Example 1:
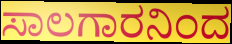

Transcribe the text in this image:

ಸಾಲಗಾರನಿಂದ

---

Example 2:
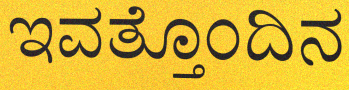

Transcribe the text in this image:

ಇವತ್ತೊಂದಿನ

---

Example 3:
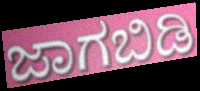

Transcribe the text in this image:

ಜಾಗಬಿಡಿ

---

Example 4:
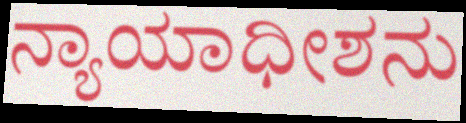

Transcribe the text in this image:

ನ್ಯಾಯಾಧೀಶನು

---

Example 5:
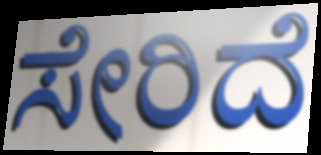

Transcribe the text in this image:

ಸೇರಿದೆ